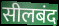
सीलबंद